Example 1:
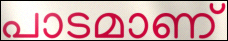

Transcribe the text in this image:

പാടമാണ്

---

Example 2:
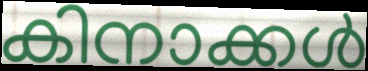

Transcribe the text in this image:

കിനാക്കൾ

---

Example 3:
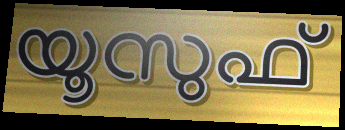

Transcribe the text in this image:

യൂസുഫ്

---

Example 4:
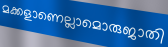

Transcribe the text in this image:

മക്കളാണെല്ലാമൊരുജാതി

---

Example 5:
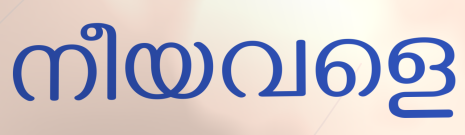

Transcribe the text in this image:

നീയവളെ